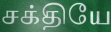
சக்தியே